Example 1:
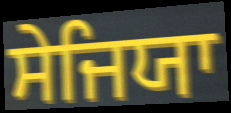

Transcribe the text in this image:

ਸੇਜਿਯਾ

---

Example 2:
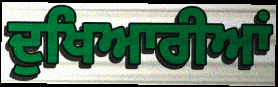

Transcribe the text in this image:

ਦੁਖਿਆਰੀਆਂ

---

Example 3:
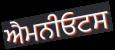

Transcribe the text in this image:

ਐਮਨੀਓਟਸ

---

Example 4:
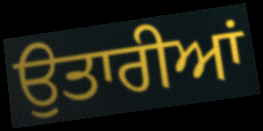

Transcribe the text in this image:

ਉਤਾਰੀਆਂ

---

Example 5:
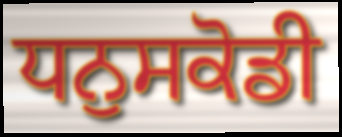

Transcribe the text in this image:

ਧਨੁਸਕੋਡੀ